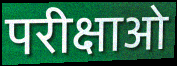
परीक्षाओ